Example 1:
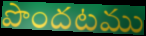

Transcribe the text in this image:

పొందటము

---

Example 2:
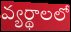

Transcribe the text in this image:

వ్యర్థాలలో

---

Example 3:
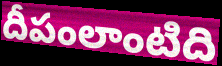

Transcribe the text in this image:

దీపంలాంటిది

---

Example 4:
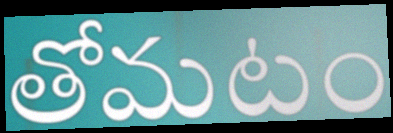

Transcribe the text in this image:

తోమటం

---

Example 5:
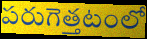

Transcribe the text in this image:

పరుగెత్తటంలో